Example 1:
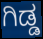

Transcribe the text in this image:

ಗಿಡ್ಡ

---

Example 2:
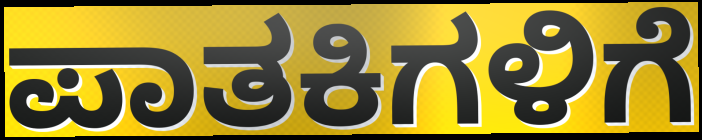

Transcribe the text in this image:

ಪಾತಕಿಗಳಿಗೆ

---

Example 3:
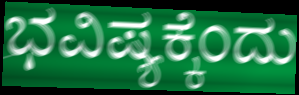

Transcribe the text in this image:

ಭವಿಷ್ಯಕ್ಕೆಂದು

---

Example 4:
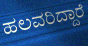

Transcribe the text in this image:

ಹಲವರಿದ್ದಾರೆ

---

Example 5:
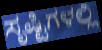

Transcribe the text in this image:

ಸೃಷ್ಟಿಗಳಲ್ಲಿ